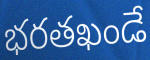
భరతఖండే